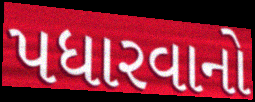
પધારવાનો